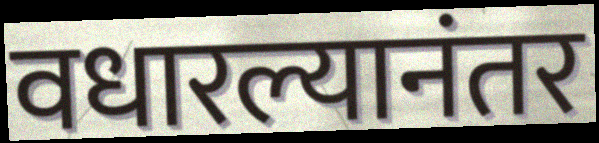
वधारल्यानंतर